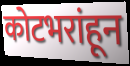
कोटभरांहून